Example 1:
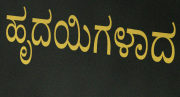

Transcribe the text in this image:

ಹೃದಯಿಗಳಾದ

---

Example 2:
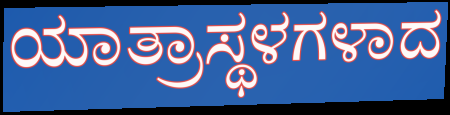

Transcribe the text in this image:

ಯಾತ್ರಾಸ್ಥಳಗಳಾದ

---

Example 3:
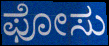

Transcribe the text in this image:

ಫೋಸು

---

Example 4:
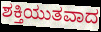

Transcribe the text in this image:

ಶಕ್ತಿಯುತವಾದ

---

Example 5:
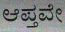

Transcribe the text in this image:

ಆಪ್ತವೇ